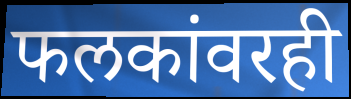
फलकांवरही